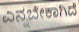
ಎನ್ನಬೇಕಾಗಿದೆ